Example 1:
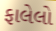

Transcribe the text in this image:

ફાલેલો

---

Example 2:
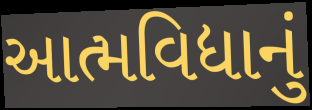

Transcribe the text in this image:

આત્મવિદ્યાનું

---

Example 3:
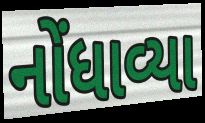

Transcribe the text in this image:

નોંધાવ્યા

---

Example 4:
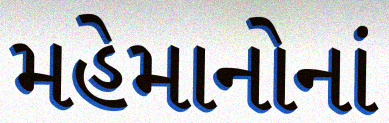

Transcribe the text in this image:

મહેમાનોનાં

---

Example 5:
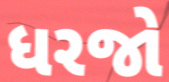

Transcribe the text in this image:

ધરજો